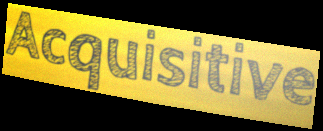
Acquisitive